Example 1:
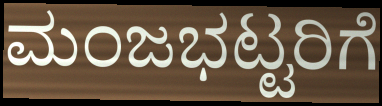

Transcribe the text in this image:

ಮಂಜಭಟ್ಟರಿಗೆ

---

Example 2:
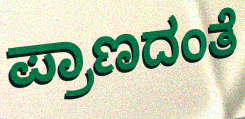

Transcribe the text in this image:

ಪ್ರಾಣದಂತೆ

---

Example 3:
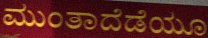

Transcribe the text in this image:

ಮುಂತಾದೆಡೆಯೂ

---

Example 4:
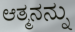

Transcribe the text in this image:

ಆತ್ಮನನ್ನು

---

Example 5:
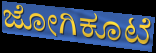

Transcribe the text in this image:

ಜೋಗಿಕೂಟೆ